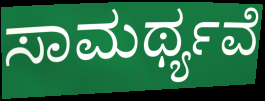
ಸಾಮರ್ಥ್ಯವೆ